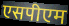
एसपीएम